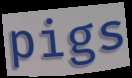
pigs